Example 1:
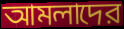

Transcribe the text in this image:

আমলাদের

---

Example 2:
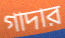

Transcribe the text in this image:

গাদার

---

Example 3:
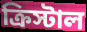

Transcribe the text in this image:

ক্রিস্টাল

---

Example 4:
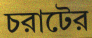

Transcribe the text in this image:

চরাটের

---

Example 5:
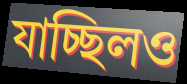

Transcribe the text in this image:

যাচ্ছিলও